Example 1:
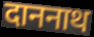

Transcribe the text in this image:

दाननाथ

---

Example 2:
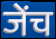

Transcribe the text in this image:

जेंच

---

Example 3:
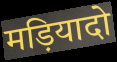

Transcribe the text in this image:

मड़ियादो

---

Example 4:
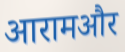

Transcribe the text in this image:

आरामऔर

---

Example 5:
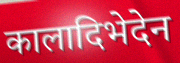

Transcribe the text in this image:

कालादिभेदेन